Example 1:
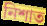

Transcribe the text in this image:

নিশাত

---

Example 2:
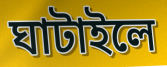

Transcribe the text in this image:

ঘাটাইলে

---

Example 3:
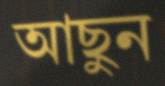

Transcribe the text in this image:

আছুন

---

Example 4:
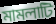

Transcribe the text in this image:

মামলাটি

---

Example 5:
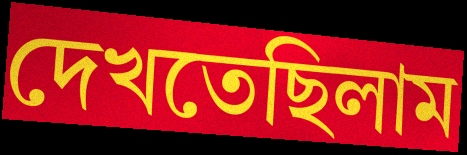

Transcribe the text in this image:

দেখতেছিলাম